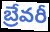
బ్రేవరీ